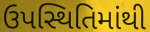
ઉપસ્થિતિમાંથી